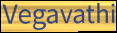
Vegavathi